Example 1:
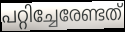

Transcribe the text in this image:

പറ്റിച്ചേരേണ്ടത്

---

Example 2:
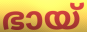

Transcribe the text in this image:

ഭായ്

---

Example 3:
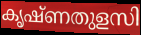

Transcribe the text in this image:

കൃഷ്ണതുളസി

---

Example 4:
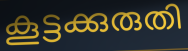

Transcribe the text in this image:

കൂട്ടക്കുരുതി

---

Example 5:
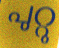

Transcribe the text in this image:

പുറ്റു